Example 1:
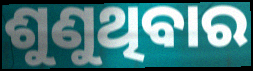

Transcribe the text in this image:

ଶୁଣୁଥିବାର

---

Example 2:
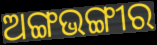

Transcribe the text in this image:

ଅଙ୍ଗଭଙ୍ଗୀର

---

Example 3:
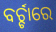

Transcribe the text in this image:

ବର୍ଚ୍ଚାରେ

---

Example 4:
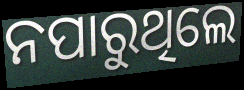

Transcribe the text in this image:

ନପାରୁଥିଲେ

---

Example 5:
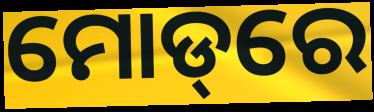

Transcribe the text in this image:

ମୋଡ୍‌ରେ